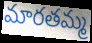
మారతమ్మ